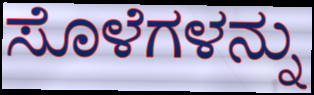
ಸೊಳೆಗಳನ್ನು